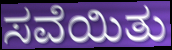
ಸವೆಯಿತು